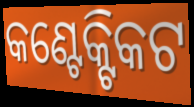
କଣ୍ଟେକ୍ଟିକଟ